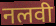
नलवी